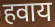
हवाय